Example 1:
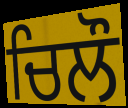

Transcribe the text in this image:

ਚਿਲੌ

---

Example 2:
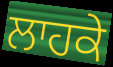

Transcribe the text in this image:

ਲਾਹਕੇ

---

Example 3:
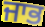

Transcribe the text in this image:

ਜਾਭ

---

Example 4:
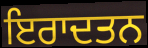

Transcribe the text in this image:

ਇਰਾਦਤਨ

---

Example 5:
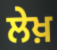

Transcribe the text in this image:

ਲੇਖ਼